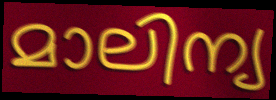
മാലിന്യ